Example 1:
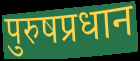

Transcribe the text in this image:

पुरुषप्रधान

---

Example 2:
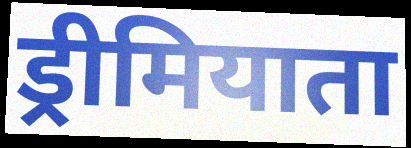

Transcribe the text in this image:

ड्रीमियाता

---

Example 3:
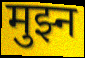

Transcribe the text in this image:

मुझ्न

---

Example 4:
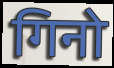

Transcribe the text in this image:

गिनो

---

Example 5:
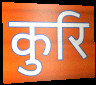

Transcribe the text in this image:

कुरि